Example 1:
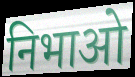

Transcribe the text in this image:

निभाओ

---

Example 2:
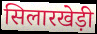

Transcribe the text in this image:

सिलारखेड़ी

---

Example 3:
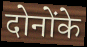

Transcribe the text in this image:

दोनोंके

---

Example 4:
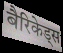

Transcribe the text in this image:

बैरिकेड्स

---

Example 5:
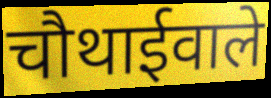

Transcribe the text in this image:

चौथाईवाले